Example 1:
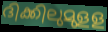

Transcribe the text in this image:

ദിക്കിലുമുളള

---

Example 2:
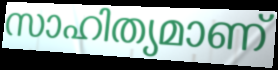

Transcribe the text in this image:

സാഹിത്യമാണ്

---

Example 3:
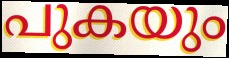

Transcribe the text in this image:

പുകയും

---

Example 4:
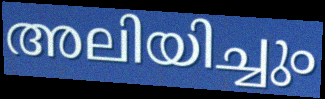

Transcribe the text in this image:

അലിയിച്ചും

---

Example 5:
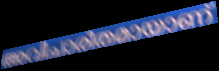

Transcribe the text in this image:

അവിചാരിതമായാണ്